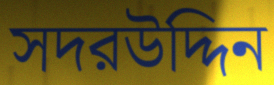
সদরউদ্দিন